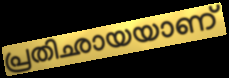
പ്രതിഛായയാണ്